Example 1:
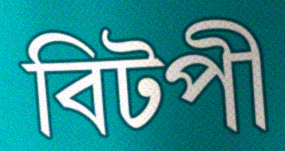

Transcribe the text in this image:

বিটপী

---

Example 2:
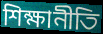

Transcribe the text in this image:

শিক্ষানীতি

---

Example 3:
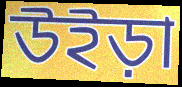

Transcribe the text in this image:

উইড়া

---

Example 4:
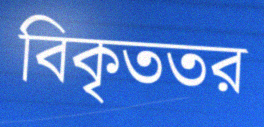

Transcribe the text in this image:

বিকৃততর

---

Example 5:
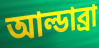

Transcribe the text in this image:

আল্ডাব্রা